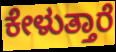
ಕೇಳುತ್ತಾರೆ